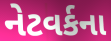
નેટવર્કના